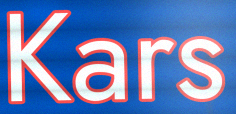
Kars